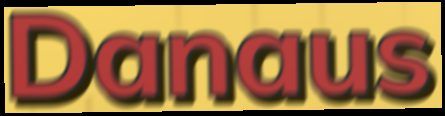
Danaus